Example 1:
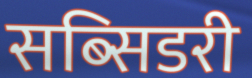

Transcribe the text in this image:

सब्सिडरी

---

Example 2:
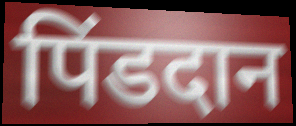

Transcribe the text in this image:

पिंडदान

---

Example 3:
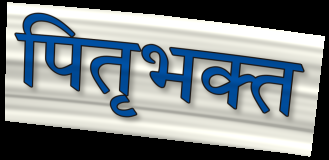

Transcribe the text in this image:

पितृभक्त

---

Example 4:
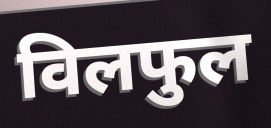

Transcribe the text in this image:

विलफुल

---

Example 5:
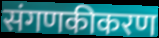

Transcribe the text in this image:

संगणकीकरण